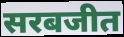
सरबजीत